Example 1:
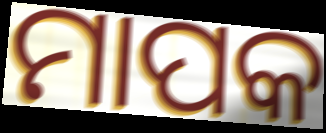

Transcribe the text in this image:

ମାପକ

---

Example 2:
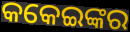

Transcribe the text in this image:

କକେଇଙ୍କର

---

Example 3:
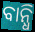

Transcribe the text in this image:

ବାନ୍ଧି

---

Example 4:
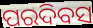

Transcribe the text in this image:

ପରଦିବସ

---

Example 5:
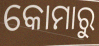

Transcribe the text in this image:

କୋମାରୁ